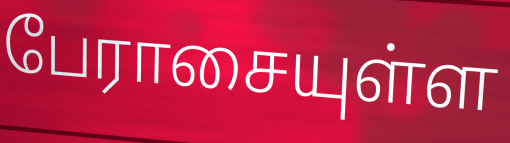
பேராசையுள்ள